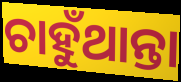
ଚାହୁଁଥାନ୍ତା